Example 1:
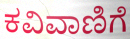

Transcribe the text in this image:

ಕವಿವಾಣಿಗೆ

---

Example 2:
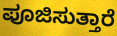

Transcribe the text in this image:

ಪೂಜಿಸುತ್ತಾರೆ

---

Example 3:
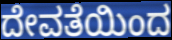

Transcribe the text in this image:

ದೇವತೆಯಿಂದ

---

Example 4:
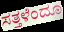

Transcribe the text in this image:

ಸತ್ತಳೆಂದೂ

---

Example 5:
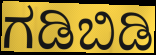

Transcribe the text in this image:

ಗಡಿಬಿಡಿ